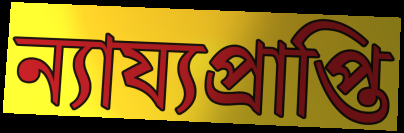
ন্যায্যপ্রাপ্তি